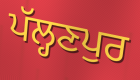
ਪੱਲ੍ਹਣਪੁਰ